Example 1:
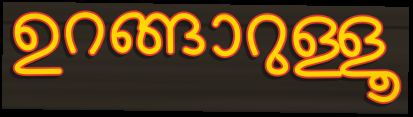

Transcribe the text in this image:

ഉറങ്ങാറുള്ളൂ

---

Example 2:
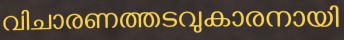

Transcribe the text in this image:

വിചാരണത്തടവുകാരനായി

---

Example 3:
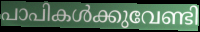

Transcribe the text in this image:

പാപികൾക്കുവേണ്ടി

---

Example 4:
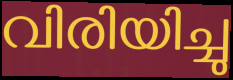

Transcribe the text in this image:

വിരിയിച്ചു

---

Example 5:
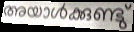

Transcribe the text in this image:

അയാൾക്കുണ്ടു്